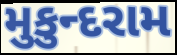
મુકુન્દરામ